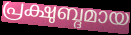
പ്രക്ഷുബ്ദമായ